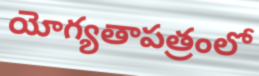
యోగ్యతాపత్రంలో